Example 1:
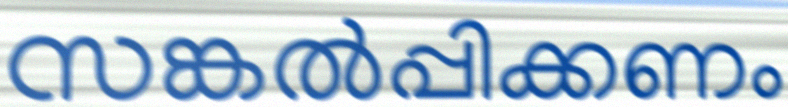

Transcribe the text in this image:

സങ്കൽപ്പിക്കണം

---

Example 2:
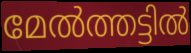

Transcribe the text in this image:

മേൽത്തട്ടിൽ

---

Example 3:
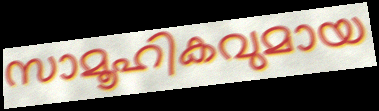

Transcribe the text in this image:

സാമൂഹികവുമായ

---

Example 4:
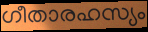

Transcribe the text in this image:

ഗീതാരഹസ്യം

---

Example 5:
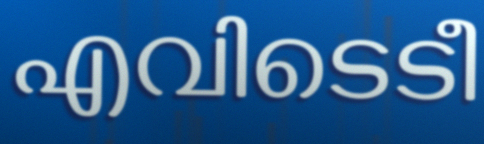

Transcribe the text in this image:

എവിടെടീ